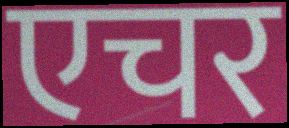
एचर